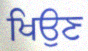
ਖਿਉਣ